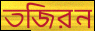
তজিরন